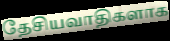
தேசியவாதிகளாக